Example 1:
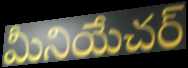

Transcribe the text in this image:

మీనియేచర్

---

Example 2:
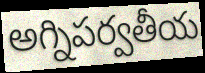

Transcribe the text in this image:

అగ్నిపర్వతీయ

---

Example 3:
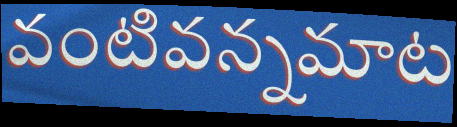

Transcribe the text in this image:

వంటివన్నమాట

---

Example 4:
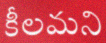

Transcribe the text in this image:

కీలమని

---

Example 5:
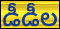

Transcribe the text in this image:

డీడీల